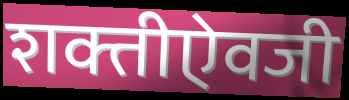
शक्तीऐवजी